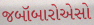
જબૉબારોએસો